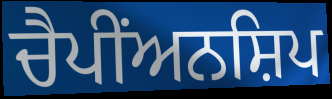
ਚੈਪੀਂਅਨਸ਼ਿਪ